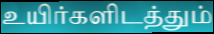
உயிர்களிடத்தும்